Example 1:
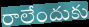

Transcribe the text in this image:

రాలేందుకు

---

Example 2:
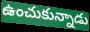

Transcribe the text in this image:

ఉంచుకున్నాడు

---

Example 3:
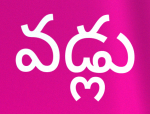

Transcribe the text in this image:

వడ్లు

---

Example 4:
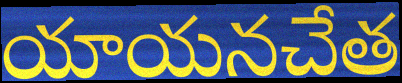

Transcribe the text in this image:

యాయనచేత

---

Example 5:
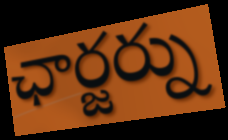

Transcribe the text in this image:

ఛార్జర్ను